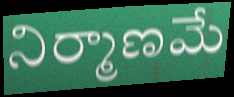
నిర్మాణమే